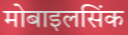
मोबाइलसिंक